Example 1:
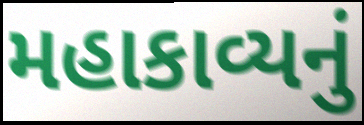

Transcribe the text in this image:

મહાકાવ્યનું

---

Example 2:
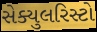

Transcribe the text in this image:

સેક્યુલરિસ્ટો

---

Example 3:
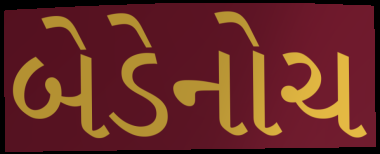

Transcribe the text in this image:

બેડેનોચ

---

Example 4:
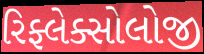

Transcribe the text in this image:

રિફ્લેક્સોલોજી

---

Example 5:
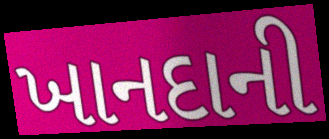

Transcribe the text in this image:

ખાનદાની